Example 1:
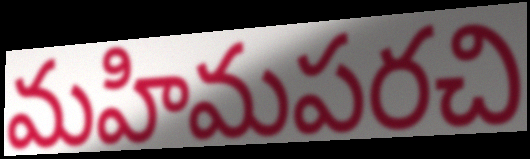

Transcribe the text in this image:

మహిమపరచి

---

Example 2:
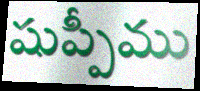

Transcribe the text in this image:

షుప్పీము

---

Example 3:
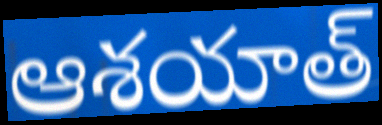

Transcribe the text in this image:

ఆశయాత్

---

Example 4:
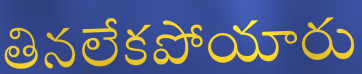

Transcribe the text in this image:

తినలేకపోయారు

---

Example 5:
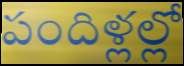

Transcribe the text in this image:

పందిళ్లల్లో